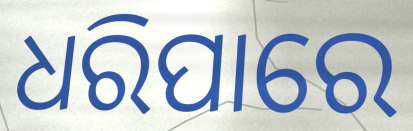
ଧରିପାରେ